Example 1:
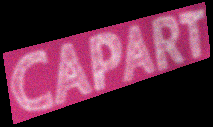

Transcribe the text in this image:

CAPART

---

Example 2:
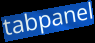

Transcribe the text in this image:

tabpanel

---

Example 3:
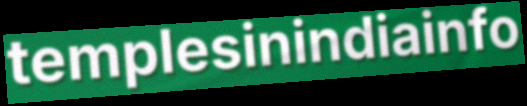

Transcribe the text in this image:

templesinindiainfo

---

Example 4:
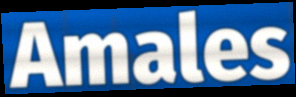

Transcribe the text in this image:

Amales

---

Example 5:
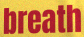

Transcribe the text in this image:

breath